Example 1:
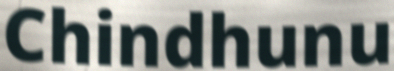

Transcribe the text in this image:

Chindhunu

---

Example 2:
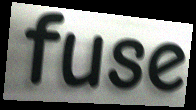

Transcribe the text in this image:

fuse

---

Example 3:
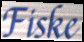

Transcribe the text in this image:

Fiske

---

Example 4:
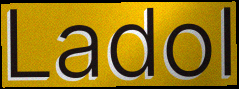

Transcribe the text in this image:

Ladol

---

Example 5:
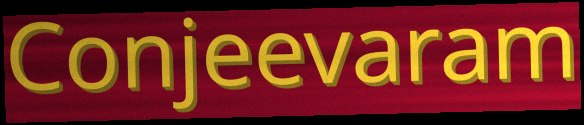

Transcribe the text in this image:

Conjeevaram